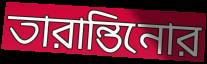
তারান্তিনোর